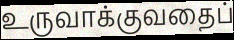
உருவாக்குவதைப்